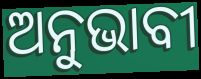
ଅନୁଭାବୀ